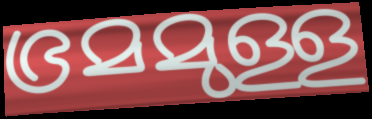
ഭ്രമമുള്ള